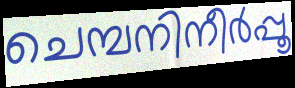
ചെമ്പനിനീർപ്പൂ